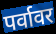
पर्वावर